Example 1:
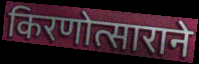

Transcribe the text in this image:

किरणोत्साराने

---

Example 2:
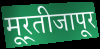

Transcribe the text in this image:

मूर्तीजापूर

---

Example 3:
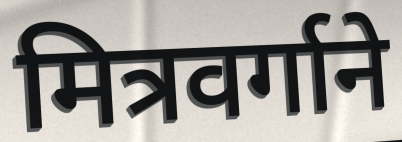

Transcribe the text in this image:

मित्रवर्गाने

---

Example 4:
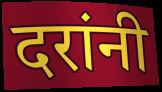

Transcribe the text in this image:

दरांनी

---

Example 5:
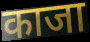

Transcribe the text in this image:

काजा